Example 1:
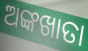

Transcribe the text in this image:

ଅଙ୍କଖାତା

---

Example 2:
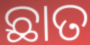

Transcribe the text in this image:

ଛାତ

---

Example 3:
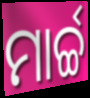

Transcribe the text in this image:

ମାର୍ଚ୍ଚ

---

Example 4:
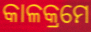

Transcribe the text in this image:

କାଳକ୍ରମେ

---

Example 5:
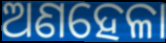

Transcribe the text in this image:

ଅଣହେଳା